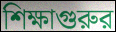
শিক্ষাগুরুর